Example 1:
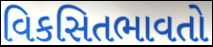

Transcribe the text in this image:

વિકસિતભાવતો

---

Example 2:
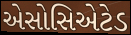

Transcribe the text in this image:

એસોસિએટેડ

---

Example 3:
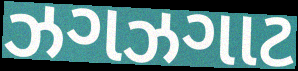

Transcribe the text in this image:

ઝગઝગાટ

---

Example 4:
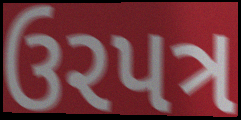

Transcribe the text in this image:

ઉરપત્ર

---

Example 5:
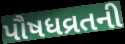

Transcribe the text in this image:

પૌષધવ્રતની